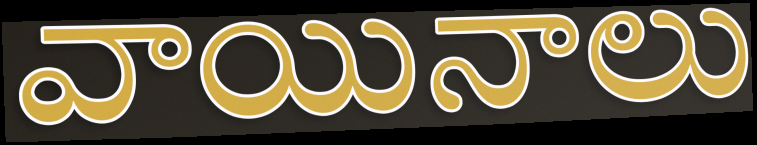
వాయినాలు